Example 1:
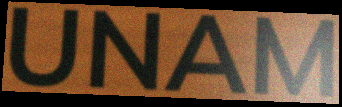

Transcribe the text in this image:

UNAM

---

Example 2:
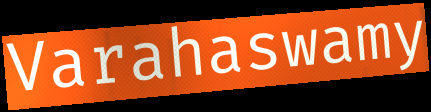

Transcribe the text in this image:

Varahaswamy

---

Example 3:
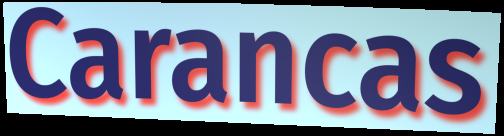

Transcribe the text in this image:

Carancas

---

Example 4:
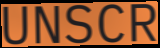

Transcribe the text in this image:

UNSCR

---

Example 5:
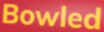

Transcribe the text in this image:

Bowled